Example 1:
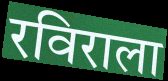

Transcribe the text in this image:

रविराला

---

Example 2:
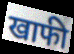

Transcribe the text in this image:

खाफी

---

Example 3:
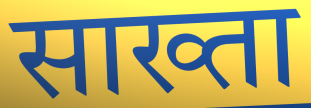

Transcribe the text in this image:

साख्ता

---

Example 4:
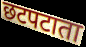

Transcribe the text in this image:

छटपटाता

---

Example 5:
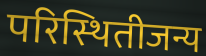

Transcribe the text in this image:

परिस्थितीजन्य